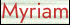
Myriam